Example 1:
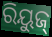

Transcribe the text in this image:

ରିୟୁଜ୍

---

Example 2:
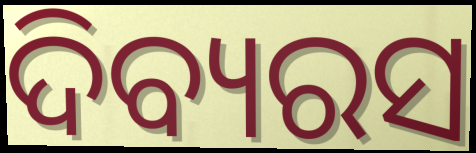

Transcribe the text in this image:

ଦିବ୍ୟରସ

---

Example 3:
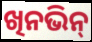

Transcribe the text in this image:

ଖିନଭିନ୍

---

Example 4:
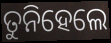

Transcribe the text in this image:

ତୁନିହେଲେ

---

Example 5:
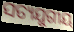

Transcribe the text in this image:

ସତ୍ୟଯୁଗୀୟ